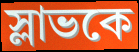
স্লাভকে